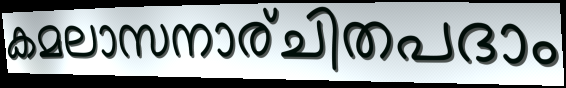
കമലാസനാര്ചിതപദാം